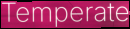
Temperate